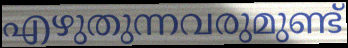
എഴുതുന്നവരുമുണ്ട്